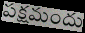
పక్షమందు